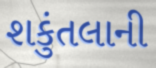
શકુંતલાની